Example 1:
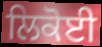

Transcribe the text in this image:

ਲਿਕੋਈ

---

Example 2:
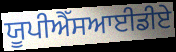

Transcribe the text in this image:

ਯੂਪੀਐੱਸਆਈਡੀਏ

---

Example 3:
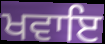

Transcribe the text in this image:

ਖਵਾਇ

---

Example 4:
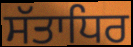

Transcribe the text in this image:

ਸੱਤਾਧਿਰ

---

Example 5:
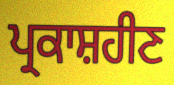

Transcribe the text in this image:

ਪ੍ਰਕਾਸ਼ਹੀਣ